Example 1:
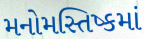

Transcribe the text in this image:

મનોમસ્તિષ્કમાં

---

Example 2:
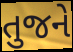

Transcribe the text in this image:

તુજને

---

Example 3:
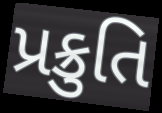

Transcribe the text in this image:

પ્રક્રુતિ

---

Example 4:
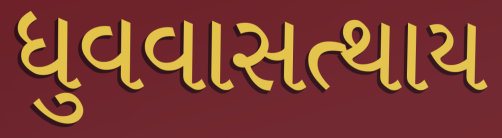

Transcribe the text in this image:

ધુવવાસત્થાય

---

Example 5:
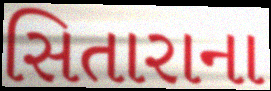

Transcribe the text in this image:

સિતારાના